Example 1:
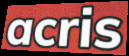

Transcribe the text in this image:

acris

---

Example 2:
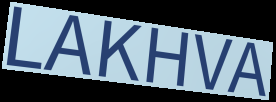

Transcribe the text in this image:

LAKHVA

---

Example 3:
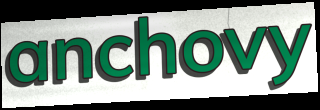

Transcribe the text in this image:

anchovy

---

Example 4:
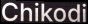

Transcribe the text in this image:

Chikodi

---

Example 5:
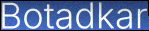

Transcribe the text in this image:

Botadkar